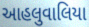
આહલુવાલિયા